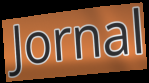
Jornal